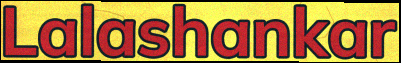
Lalashankar